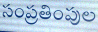
సంప్రతింపుల